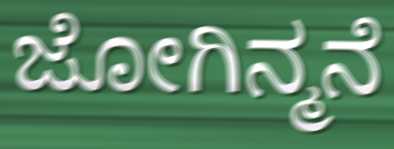
ಜೋಗಿನ್ಮನೆ